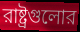
রাষ্ট্রগুলোর